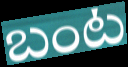
బంట